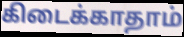
கிடைக்காதாம்